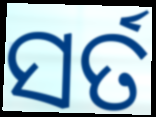
ସର୍ତ